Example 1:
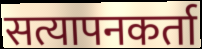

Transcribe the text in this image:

सत्यापनकर्ता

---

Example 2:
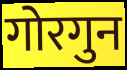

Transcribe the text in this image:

गोरगुन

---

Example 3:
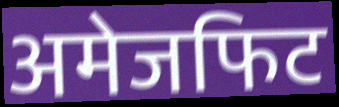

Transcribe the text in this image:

अमेजफिट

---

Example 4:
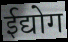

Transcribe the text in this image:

ईद्योग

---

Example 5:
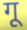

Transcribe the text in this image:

गू